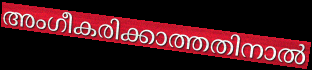
അംഗീകരിക്കാത്തതിനാൽ